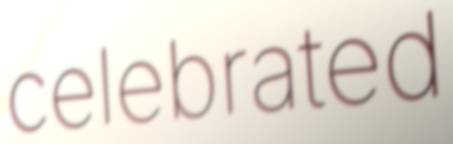
celebrated